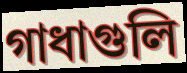
গাধাগুলি